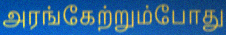
அரங்கேற்றும்போது